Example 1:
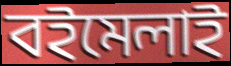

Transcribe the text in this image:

বইমেলাই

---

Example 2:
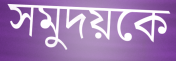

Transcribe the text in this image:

সমুদয়কে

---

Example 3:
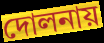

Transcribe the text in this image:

দোলনায়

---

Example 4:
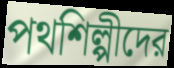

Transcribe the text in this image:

পথশিল্পীদের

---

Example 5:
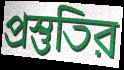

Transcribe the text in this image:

প্রস্তুতির